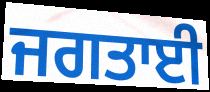
ਜਗਤਾਈ